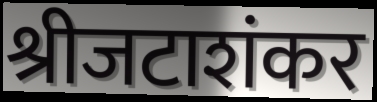
श्रीजटाशंकर